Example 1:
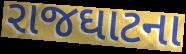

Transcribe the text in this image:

રાજઘાટના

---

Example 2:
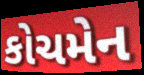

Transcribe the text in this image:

કોચમેન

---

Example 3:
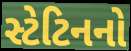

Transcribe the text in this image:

સ્ટેટિનનો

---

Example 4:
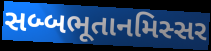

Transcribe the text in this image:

સબ્બભૂતાનમિસ્સર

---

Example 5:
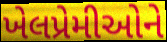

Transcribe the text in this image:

ખેલપ્રેમીઓને